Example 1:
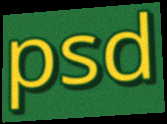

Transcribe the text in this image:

psd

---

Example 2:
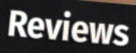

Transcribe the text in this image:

Reviews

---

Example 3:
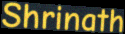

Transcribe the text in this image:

Shrinath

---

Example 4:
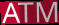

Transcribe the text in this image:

ATM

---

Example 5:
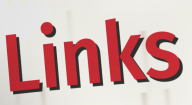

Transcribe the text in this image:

Links